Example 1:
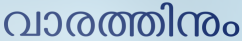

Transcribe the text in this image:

വാരത്തിനും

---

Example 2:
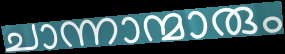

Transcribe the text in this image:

ചാന്നാന്മാരും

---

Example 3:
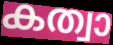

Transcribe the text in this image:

കത്വാ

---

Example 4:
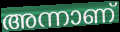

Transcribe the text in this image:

അന്നാണ്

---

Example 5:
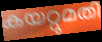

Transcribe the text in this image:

കയറ്റുമതി